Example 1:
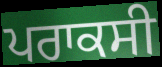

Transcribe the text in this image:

ਪਰਾਕਸੀ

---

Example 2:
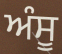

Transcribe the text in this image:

ਅੰਸੂ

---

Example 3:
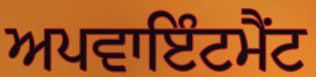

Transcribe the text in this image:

ਅਪਵਾਇੰਟਮੈਂਟ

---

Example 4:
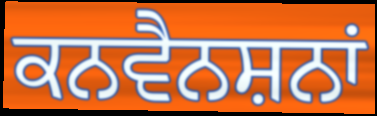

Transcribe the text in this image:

ਕਨਵੈਨਸ਼ਨਾਂ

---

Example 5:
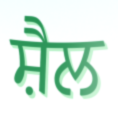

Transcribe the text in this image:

ਸ਼ੈਲ